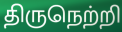
திருநெற்றி